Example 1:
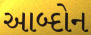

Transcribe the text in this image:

આબ્દોન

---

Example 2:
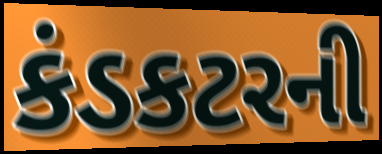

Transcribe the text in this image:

કંડકટરની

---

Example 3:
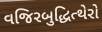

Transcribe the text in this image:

વજિરબુદ્ધિત્થેરો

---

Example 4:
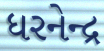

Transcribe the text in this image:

ધરનેન્દ્ર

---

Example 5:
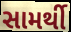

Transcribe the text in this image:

સામર્થી